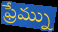
ఫ్రేమ్ను